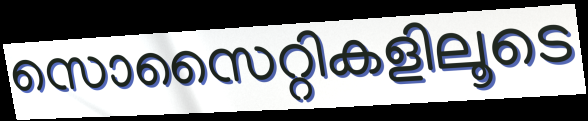
സൊസൈറ്റികളിലൂടെ